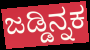
ಜಡ್ಡಿನ್ನಕ